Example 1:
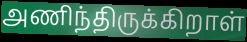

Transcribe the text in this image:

அணிந்திருக்கிறாள்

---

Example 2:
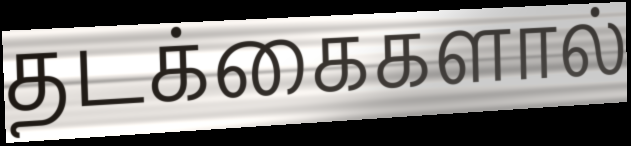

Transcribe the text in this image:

தடக்கைகளால்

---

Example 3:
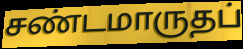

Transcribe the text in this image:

சண்டமாருதப்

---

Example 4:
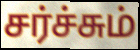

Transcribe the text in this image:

சர்ச்சும்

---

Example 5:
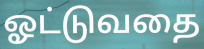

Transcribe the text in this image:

ஓட்டுவதை